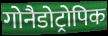
गोनैडोट्रोपिक